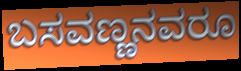
ಬಸವಣ್ಣನವರೂ